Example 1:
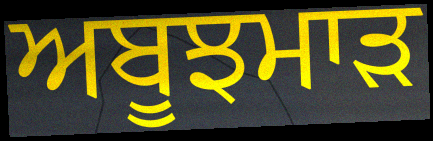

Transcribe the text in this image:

ਅਬੂਝਮਾੜ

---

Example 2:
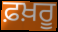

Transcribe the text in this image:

ਫ਼ਖ਼ਰੂ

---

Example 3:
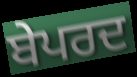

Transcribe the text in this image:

ਬੇਪਰਦ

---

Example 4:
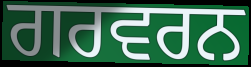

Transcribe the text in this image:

ਗਰਵਰਨ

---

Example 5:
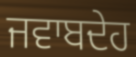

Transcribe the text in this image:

ਜਵਾਬਦੇਹ